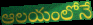
ఆలయంలోనే